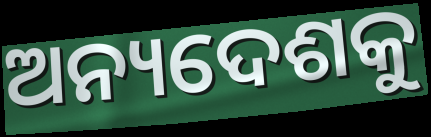
ଅନ୍ୟଦେଶକୁ